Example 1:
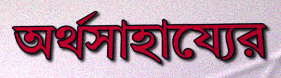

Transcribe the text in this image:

অর্থসাহায্যের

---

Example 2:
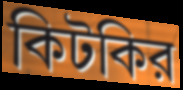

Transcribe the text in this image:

কিটকির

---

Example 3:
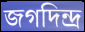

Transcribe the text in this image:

জগদিন্দ্র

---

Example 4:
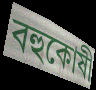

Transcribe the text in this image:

বহুকোষী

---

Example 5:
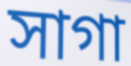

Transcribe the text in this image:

সাগা